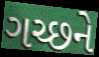
ગચ્છને